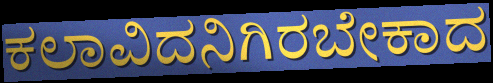
ಕಲಾವಿದನಿಗಿರಬೇಕಾದ